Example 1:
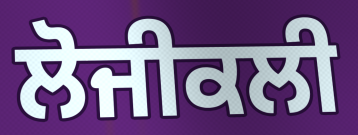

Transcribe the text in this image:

ਲੋਜੀਕਲੀ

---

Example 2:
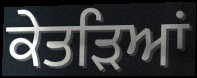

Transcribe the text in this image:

ਕੇਤੜਿਆਂ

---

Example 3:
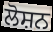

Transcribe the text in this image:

ਲੋਸ਼ਨ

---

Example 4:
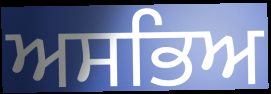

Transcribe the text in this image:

ਅਸਭਿਅ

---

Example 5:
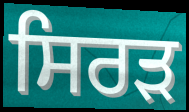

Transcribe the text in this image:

ਸਿਰਡ਼